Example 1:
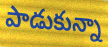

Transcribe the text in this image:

పాడుకున్నా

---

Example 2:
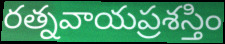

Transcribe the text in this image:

రత్నవాయప్రశస్తిం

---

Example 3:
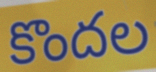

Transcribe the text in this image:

కొందల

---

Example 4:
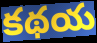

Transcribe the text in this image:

కథయ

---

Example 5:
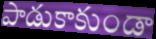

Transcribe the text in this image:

పాడుకాకుండా